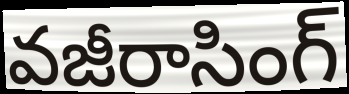
వజీరాసింగ్